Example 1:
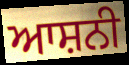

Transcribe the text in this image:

ਆਸ਼ਨੀ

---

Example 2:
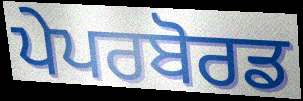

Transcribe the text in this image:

ਪੇਪਰਬੋਰਡ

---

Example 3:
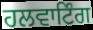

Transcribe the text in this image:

ਹਲਵਾਟਿੰਗ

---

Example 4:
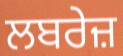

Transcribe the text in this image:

ਲਬਰੇਜ਼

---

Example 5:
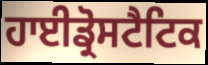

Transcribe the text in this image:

ਹਾਈਡ੍ਰੋਸਟੈਟਿਕ